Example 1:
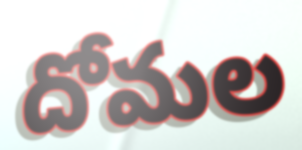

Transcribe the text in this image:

దోమల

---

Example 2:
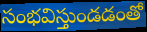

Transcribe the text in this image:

సంభవిస్తుండడంతో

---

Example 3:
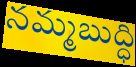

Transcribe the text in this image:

నమ్మబుద్ధి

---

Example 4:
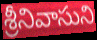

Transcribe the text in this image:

శ్రీనివాసుని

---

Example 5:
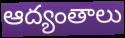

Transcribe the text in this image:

ఆద్యంతాలు